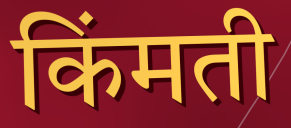
किंमती